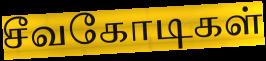
சீவகோடிகள்